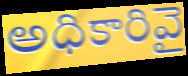
అధికారివై